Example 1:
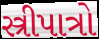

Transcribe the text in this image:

સ્ત્રીપાત્રો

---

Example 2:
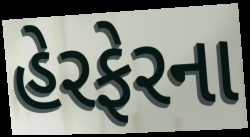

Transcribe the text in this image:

હેરફેરના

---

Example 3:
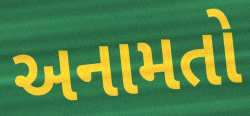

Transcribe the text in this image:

અનામતો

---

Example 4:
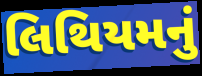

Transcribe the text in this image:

લિથિયમનું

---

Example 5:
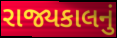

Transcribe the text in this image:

રાજ્યકાલનું